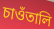
চাওঁতালি